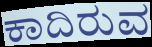
ಕಾದಿರುವ